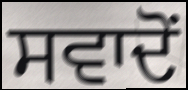
ਸਵਾਦੋਂ